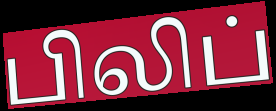
பிலிப்